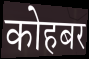
कोहबर